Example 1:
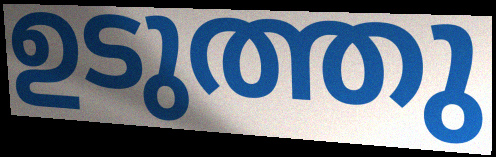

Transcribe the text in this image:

ഉടുത്തു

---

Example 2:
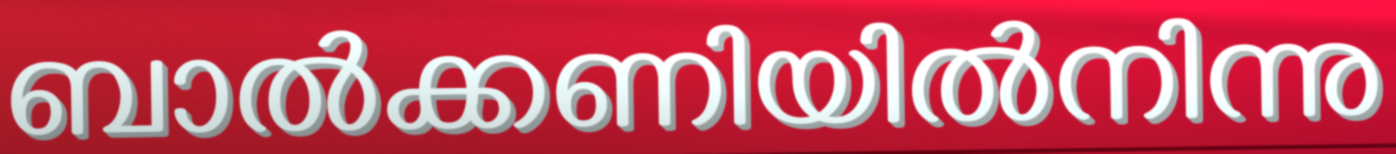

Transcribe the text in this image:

ബാൽക്കണിയിൽനിന്നു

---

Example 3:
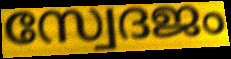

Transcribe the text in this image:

സ്വേദജം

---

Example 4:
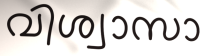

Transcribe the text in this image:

വിശ്വാസാ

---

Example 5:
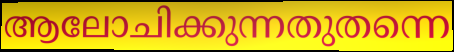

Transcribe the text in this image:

ആലോചിക്കുന്നതുതന്നെ